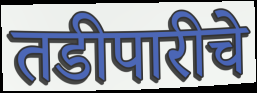
तडीपारीचे